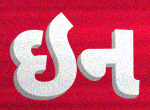
ઇન